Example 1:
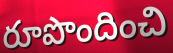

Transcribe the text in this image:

రూపొందించి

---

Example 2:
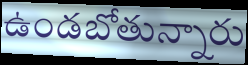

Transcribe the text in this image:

ఉండబోతున్నారు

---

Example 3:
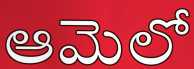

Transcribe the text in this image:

ఆమెలో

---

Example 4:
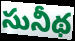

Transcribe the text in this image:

సునీథ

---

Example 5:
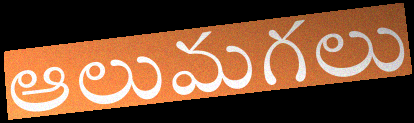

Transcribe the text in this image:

ఆలుమగలు